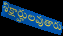
శిక్షార్హులవుతారు